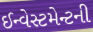
ઈન્વેસ્ટમેન્ટની